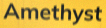
Amethyst